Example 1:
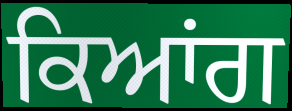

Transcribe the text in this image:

ਕਿਆਂਗ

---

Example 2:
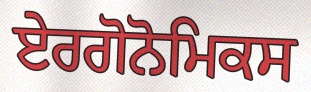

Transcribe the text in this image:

ਏਰਗੋਨੋਮਿਕਸ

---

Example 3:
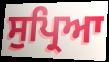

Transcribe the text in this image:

ਸੁਪ੍ਰਿਆ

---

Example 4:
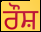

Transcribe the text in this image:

ਰੌਸ਼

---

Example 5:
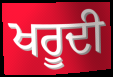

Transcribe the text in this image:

ਖਰੂਦੀ